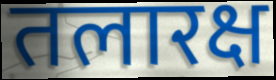
तलारक्ष